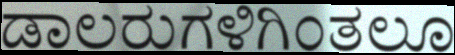
ಡಾಲರುಗಳಿಗಿಂತಲೂ